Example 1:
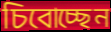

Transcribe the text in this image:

চিবোচ্ছেন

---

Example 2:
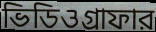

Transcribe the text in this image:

ভিডিওগ্রাফার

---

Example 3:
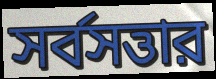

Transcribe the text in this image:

সর্বসত্তার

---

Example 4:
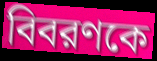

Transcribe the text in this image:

বিবরণকে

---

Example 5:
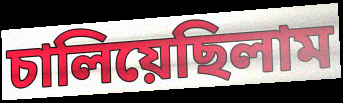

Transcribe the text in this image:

চালিয়েছিলাম